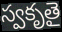
స్వకృతై